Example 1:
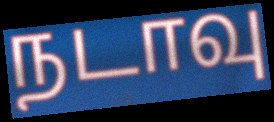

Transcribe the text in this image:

நடாவு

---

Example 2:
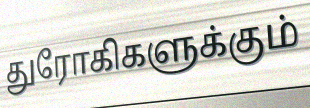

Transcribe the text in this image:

துரோகிகளுக்கும்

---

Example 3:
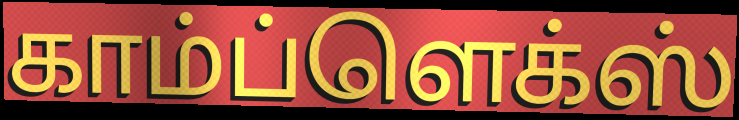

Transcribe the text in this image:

காம்ப்ளெக்ஸ்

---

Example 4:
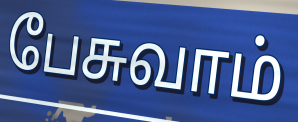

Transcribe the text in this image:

பேசுவாம்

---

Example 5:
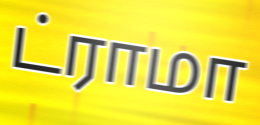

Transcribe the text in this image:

ட்ராமா